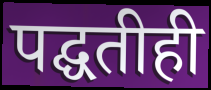
पद्घतीही